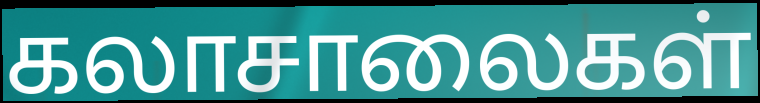
கலாசாலைகள்